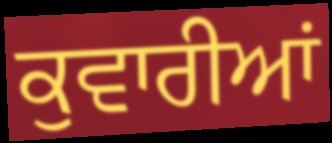
ਕੁਵਾਰੀਆਂ